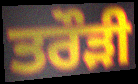
ਤਰੌੜੀ